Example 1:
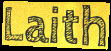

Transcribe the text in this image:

Laith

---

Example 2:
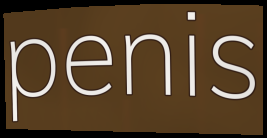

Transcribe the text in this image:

penis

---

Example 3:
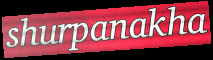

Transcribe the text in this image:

shurpanakha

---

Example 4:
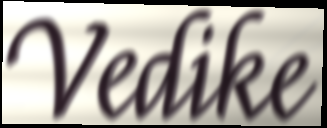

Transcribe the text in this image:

Vedike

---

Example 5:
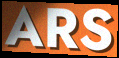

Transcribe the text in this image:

ARS